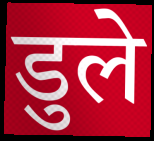
डुले